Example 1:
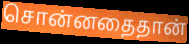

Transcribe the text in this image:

சொன்னதைதான்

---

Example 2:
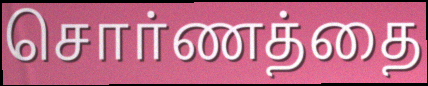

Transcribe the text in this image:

சொர்ணத்தை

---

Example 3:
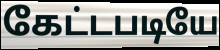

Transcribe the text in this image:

கேட்டபடியே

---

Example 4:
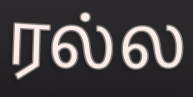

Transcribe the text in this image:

ரல்ல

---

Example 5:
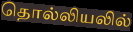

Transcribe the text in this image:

தொல்லியலில்